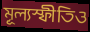
মূল্যস্ফীতিও